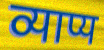
व्याप्य